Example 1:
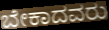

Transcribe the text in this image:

ಬೇಕಾದವರು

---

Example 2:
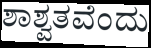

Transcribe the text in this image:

ಶಾಶ್ವತವೆಂದು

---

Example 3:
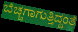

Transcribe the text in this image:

ಬೆಚ್ಚಗಾಗುತ್ತಿದ್ದಂತೆ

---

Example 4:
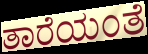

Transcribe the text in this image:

ತಾರೆಯಂತೆ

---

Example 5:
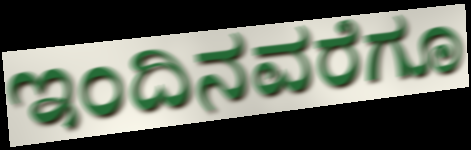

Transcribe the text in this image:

ಇಂದಿನವರೆಗೂ